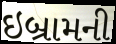
ઇબ્રામની